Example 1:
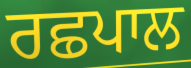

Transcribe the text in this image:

ਰਛਪਾਲ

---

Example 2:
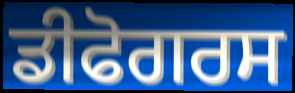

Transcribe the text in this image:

ਡੀਫੋਗਰਸ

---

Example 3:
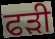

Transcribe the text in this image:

ਫੜੀ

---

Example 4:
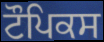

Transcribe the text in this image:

ਟੌਪਿਕਸ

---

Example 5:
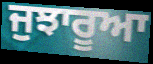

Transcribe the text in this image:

ਜੁਝਾਰੂਆ